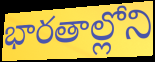
భారతాల్లోని